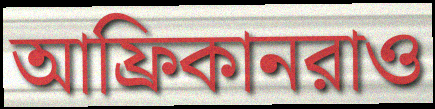
আফ্রিকানরাও